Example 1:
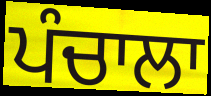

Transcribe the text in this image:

ਪੰਚਾਲਾ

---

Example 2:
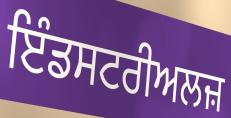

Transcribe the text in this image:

ਇੰਡਸਟਰੀਅਲਜ਼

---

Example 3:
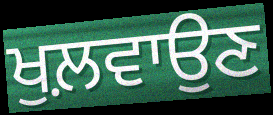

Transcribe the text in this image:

ਖੁਲ਼ਵਾਉਣ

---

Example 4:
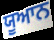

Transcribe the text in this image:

ਯੂਆਨ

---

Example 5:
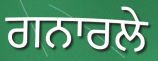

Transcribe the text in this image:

ਗਨਾਰਲੇ